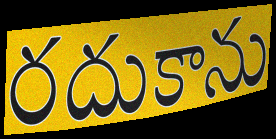
రదుకాను